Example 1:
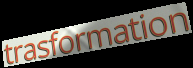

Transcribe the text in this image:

trasformation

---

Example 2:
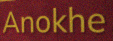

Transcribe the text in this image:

Anokhe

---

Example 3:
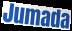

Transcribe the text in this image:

Jumada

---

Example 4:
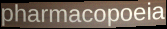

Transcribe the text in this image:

pharmacopoeia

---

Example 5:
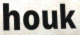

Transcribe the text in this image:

houk